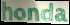
honda